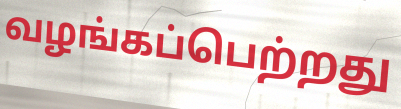
வழங்கப்பெற்றது